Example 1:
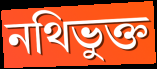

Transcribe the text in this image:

নথিভুক্ত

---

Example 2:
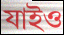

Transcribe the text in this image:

যাইও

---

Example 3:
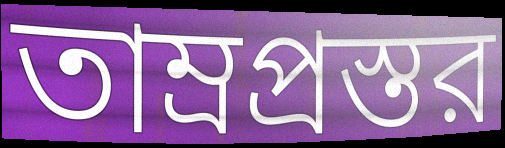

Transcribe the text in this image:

তাম্রপ্রস্তর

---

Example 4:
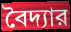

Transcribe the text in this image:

বৈদ্যার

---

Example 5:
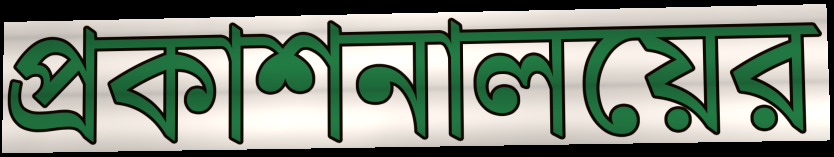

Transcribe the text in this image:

প্রকাশনালয়ের